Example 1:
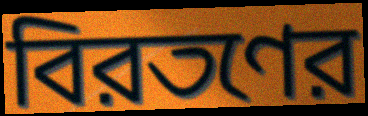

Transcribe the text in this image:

বিরতণের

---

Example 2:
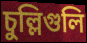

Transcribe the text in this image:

চুল্লিগুলি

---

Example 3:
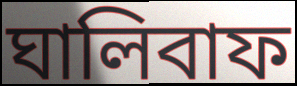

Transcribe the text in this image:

ঘালিবাফ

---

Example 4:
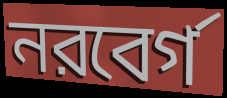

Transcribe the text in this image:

নরবের্গ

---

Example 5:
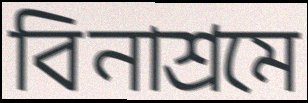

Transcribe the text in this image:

বিনাশ্রমে